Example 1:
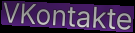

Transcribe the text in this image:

VKontakte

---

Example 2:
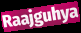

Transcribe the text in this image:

Raajguhya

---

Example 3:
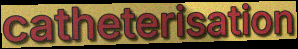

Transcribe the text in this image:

catheterisation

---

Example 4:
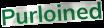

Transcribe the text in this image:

Purloined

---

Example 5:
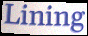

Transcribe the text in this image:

Lining